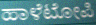
ಹಾಳೆಟೋಪಿ